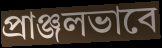
প্রাঞ্জলভাবে